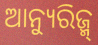
ଆନ୍ୟୁରିଜ୍ମ୍